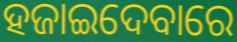
ହଜାଇଦେବାରେ